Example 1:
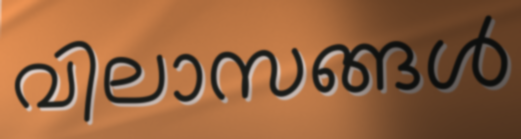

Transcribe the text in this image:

വിലാസങ്ങൾ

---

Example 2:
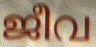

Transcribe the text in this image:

ജീവ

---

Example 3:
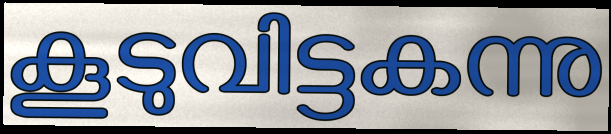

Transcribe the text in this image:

കൂടുവിട്ടകന്നു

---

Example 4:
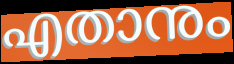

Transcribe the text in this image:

എതാനും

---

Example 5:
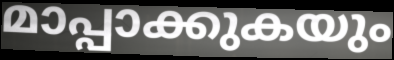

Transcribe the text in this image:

മാപ്പാക്കുകയും